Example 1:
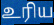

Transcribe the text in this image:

உரிய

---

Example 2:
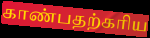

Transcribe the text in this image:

காண்பதற்கரிய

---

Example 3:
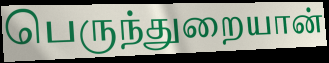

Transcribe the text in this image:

பெருந்துறையான்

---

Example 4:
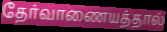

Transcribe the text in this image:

தேர்வாணையத்தால்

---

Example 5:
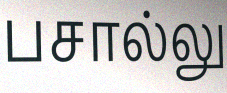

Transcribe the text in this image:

பசால்லு